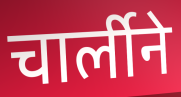
चार्लीने